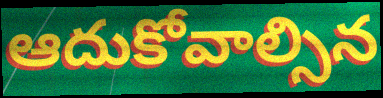
ఆదుకోవాల్సిన